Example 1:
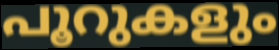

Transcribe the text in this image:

പൂറുകളും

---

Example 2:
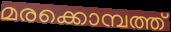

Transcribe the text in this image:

മരക്കൊമ്പത്ത്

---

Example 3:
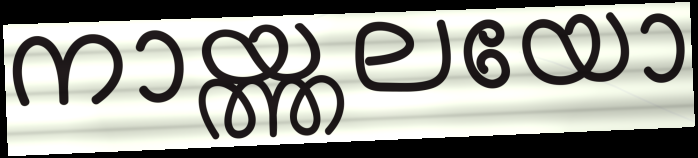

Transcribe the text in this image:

നായ്ത്തലയോ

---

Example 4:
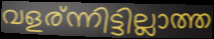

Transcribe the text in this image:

വളര്ന്നിട്ടില്ലാത്ത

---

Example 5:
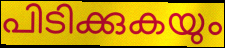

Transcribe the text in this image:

പിടിക്കുകയും